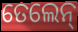
ତେଲେନ୍